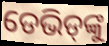
ଡେଭିଡ୍‌ଙ୍କୁ